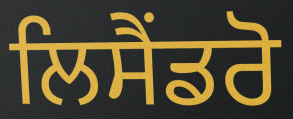
ਲਿਸੈਂਡਰੋ